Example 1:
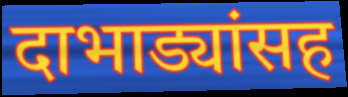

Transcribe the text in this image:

दाभाड्यांसह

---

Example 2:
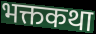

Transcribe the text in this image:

भक्तकथा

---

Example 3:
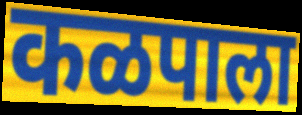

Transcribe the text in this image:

कळपाला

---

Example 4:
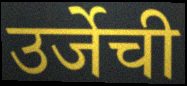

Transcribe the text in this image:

उर्जेची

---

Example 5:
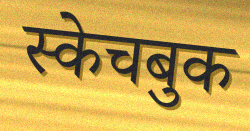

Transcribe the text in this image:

स्केचबुक